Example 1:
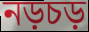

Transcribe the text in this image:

নড়চড়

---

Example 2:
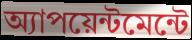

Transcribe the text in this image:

অ্যাপয়েন্টমেন্টে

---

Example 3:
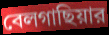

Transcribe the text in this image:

বেলগাছিয়ার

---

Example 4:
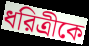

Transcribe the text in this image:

ধরিত্রীকে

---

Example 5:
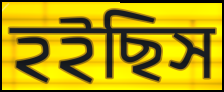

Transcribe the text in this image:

হইছিস